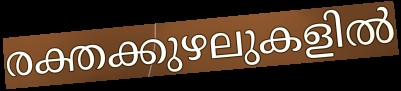
രക്തക്കുഴലുകളിൽ